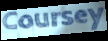
Coursey